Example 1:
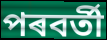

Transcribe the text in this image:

পৰবৰ্তী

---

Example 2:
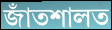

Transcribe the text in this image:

জাঁতশালত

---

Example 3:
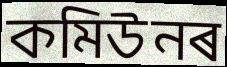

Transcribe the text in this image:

কমিউনৰ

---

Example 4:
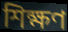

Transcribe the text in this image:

শিক্ষণ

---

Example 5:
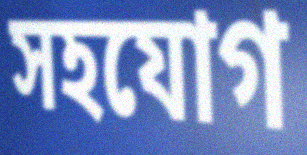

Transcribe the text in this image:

সহযোগ